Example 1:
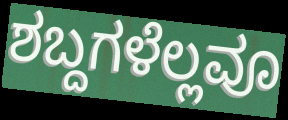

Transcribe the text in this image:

ಶಬ್ದಗಳೆಲ್ಲವೂ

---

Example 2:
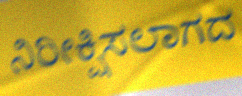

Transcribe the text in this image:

ನಿರೀಕ್ಷಿಸಲಾಗದ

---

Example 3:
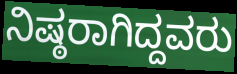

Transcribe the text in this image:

ನಿಷ್ಠರಾಗಿದ್ದವರು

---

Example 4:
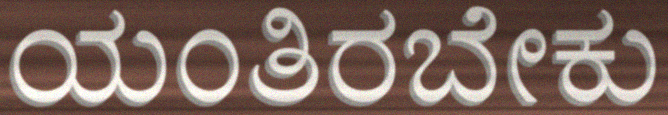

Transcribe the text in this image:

ಯಂತಿರಬೇಕು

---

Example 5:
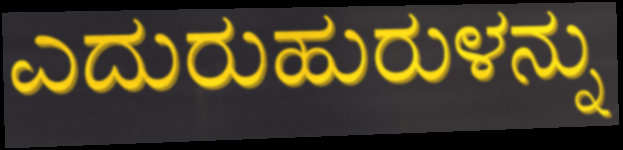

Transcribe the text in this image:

ಎದುರುಹುರುಳನ್ನು